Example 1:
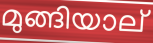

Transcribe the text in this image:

മുങ്ങിയാല്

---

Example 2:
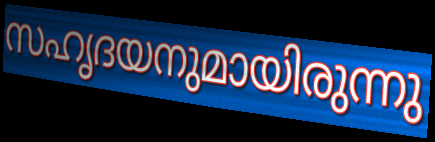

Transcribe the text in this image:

സഹൃദയനുമായിരുന്നു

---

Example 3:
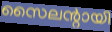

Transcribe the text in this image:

സൈലന്റായി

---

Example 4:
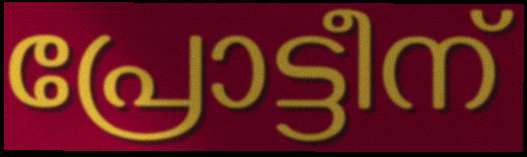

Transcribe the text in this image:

പ്രോട്ടീന്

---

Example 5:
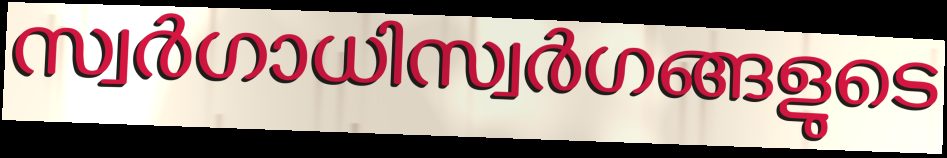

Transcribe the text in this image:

സ്വർഗാധിസ്വർഗങ്ങളുടെ